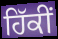
ਹਿੱਕੀਂ